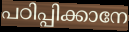
പഠിപ്പിക്കാനേ